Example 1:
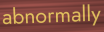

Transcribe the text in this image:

abnormally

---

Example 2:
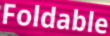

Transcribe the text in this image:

Foldable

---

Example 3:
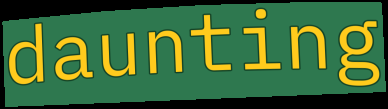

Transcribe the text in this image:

daunting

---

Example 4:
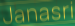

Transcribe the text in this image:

Janasri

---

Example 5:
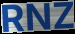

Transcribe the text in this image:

RNZ